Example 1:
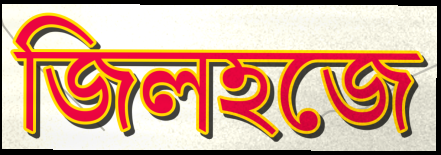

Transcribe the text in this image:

জিলহজে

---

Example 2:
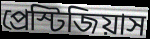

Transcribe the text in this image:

প্রেস্টিজিয়াস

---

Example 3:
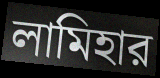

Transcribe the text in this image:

লামিহার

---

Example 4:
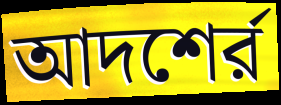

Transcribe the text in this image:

আদশের্র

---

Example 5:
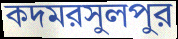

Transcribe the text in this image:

কদমরসুলপুর